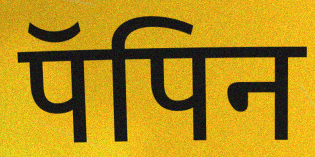
पॅपिन